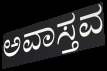
ಅವಾಸ್ತವ